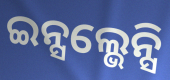
ଇନ୍ସଲ୍ଭେନ୍ସି